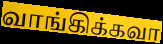
வாங்கிக்கவா